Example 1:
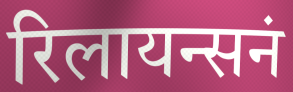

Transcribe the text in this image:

रिलायन्सनं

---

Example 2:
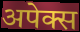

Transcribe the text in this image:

अपेक्स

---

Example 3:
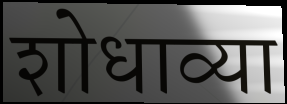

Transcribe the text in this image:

शोधाव्या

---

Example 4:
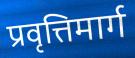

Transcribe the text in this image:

प्रवृत्तिमार्ग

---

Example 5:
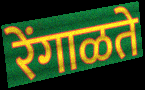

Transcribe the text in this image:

रेंगाळते